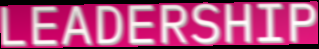
LEADERSHIP